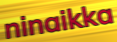
ninaikka